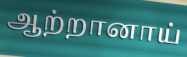
ஆற்றானாய்